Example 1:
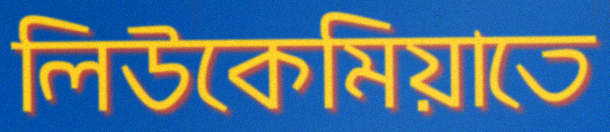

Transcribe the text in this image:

লিউকেমিয়াতে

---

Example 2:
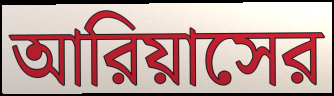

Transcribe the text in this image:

আরিয়াসের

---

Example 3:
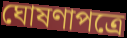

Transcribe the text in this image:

ঘোষণাপত্রে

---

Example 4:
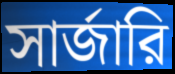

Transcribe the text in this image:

সার্জারি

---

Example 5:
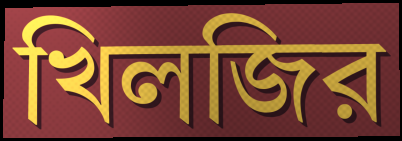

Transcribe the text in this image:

খিলজির